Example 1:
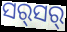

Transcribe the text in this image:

ସର୍‍ସର୍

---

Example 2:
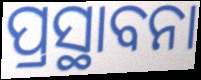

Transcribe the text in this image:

ପ୍ରସ୍ଥାବନା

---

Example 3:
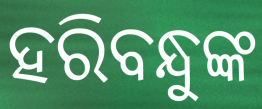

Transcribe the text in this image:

ହରିବନ୍ଧୁଙ୍କ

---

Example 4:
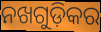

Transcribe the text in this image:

ନଖଗୁଡ଼ିକର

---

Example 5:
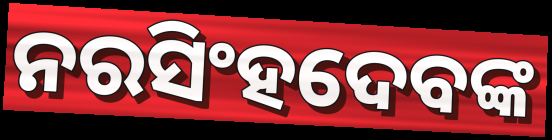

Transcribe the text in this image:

ନରସିଂହଦେବଙ୍କ